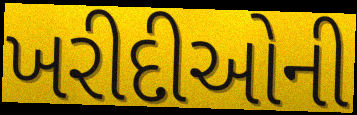
ખરીદીઓની